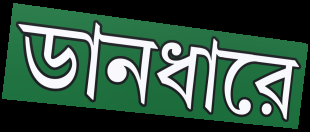
ডানধারে